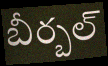
బీర్బల్